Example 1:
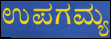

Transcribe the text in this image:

ಉಪಗಮ್ಯ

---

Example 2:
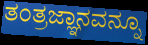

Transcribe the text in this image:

ತಂತ್ರಜ್ಞಾನವನ್ನೂ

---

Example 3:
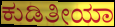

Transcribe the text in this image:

ಕುಡಿತೀಯಾ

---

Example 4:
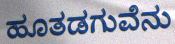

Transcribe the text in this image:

ಹೂತಡಗುವೆನು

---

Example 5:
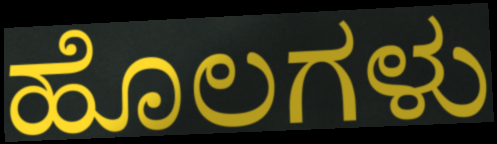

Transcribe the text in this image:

ಹೊಲಗಳು